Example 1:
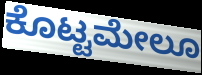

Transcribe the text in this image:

ಕೊಟ್ಟಮೇಲೂ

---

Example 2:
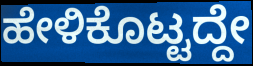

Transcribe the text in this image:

ಹೇಳಿಕೊಟ್ಟದ್ದೇ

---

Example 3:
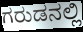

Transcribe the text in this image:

ಗರುಡನಲ್ಲಿ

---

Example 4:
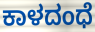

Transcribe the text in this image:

ಕಾಳದಂಧೆ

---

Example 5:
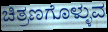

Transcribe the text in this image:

ಚಿತ್ರಣಗೊಳ್ಳುವ